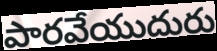
పారవేయుదురు